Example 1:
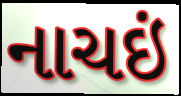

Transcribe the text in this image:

નાચઇં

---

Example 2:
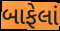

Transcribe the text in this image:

બાફેલાં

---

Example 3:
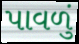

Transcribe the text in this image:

પાવળું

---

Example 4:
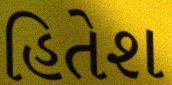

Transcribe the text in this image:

હિતેશ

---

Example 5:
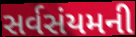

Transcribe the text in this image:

સર્વસંયમની